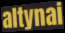
altynai